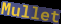
Mullet